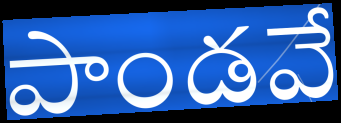
పాండవే